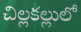
చిల్లకల్లులో